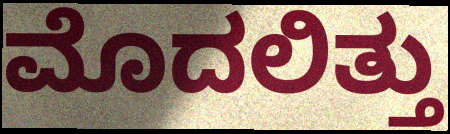
ಮೊದಲಿತ್ತು